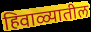
हिवाळ्यातील